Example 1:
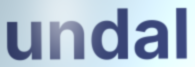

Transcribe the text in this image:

undal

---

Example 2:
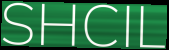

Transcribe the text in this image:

SHCIL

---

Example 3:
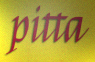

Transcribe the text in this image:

pitta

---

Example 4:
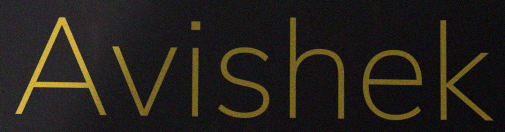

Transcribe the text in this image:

Avishek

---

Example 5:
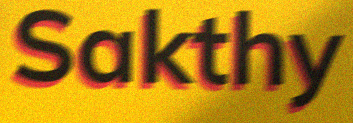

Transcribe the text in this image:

Sakthy